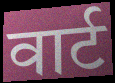
वार्ट